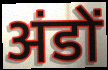
अंडों